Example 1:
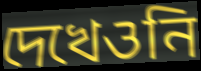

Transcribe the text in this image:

দেখেওনি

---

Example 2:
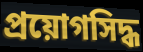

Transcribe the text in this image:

প্রয়োগসিদ্ধ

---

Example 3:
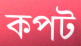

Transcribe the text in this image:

কপট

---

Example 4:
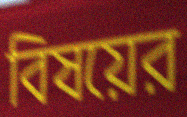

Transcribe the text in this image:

বিষয়ের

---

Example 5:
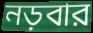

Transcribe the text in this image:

নড়বার